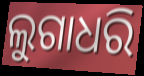
ଲୁଗାଧରି